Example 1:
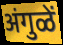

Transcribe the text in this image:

अंगुळें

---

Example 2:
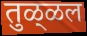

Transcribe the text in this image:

तुळ्‌ळल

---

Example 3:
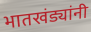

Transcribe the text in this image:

भातखंड्यांनी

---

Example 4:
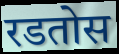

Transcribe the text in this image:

रडतोस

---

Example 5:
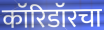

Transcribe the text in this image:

कॉरिडॉरचा